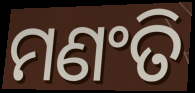
ମଣଂତି